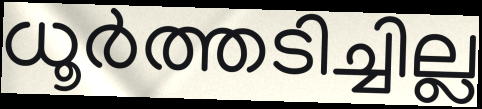
ധൂർത്തടിച്ചില്ല